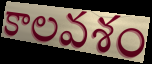
కాలవశం